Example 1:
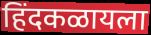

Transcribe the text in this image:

हिंदकळायला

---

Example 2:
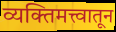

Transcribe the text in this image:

व्यक्तिमत्त्वातून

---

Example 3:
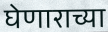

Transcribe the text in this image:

घेणाराच्या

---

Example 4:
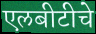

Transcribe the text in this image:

एलबीटीचे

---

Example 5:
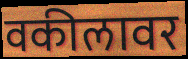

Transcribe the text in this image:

वकीलावर